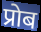
प्रोब